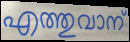
എത്തുവാന്